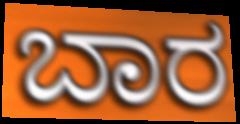
ಬಾರ